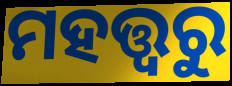
ମହତ୍ତ୍ୱରୁ